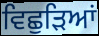
ਵਿਛੁੜਿਆਂ